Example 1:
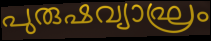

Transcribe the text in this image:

പുരുഷവ്യാഘ്രം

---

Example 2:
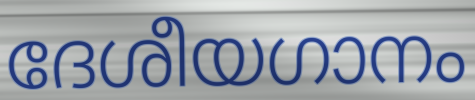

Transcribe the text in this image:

ദേശീയഗാനം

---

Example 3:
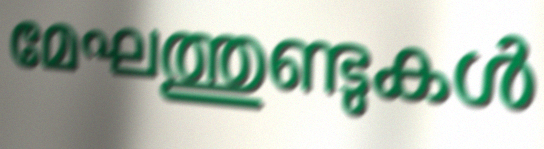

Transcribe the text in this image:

മേഘത്തുണ്ടുകൾ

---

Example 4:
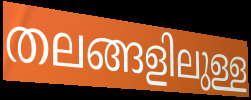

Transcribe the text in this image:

തലങ്ങളിലുള്ള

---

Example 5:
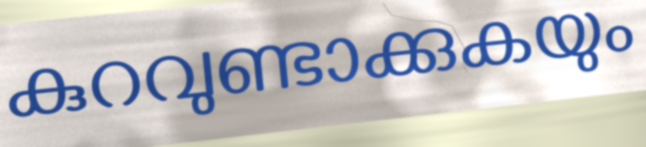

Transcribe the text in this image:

കുറവുണ്ടാക്കുകയും